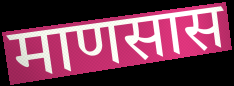
माणसास